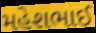
મહેશભાઈ